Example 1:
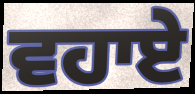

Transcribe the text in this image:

ਵਹਾਏ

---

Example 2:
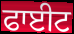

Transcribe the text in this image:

ਫਾਈਟ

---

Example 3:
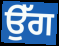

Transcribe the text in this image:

ਉੱਗ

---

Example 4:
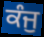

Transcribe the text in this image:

ਕੰਜੁ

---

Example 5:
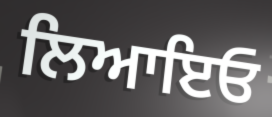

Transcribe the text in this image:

ਲਿਆਇਓ